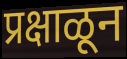
प्रक्षाळून